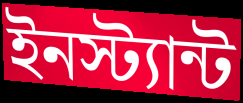
ইনস্ট্যান্ট